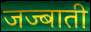
जज्बाती